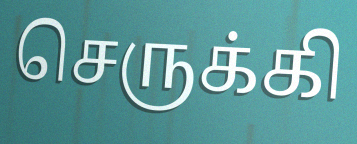
செருக்கி